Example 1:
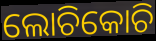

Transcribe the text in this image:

ଲୋଚିକୋଚି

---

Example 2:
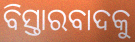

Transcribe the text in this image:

ବିସ୍ତାରବାଦକୁ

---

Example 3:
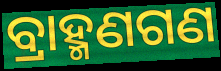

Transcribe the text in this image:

ବ୍ରାହ୍ମଣଗଣ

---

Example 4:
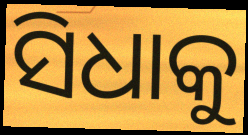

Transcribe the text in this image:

ସିଧାକୁ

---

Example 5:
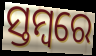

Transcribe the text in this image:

ସ୍ତମ୍ବରେ